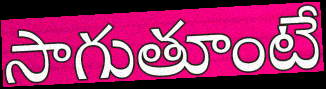
సాగుతూంటే